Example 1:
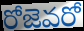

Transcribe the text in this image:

రోజెవరో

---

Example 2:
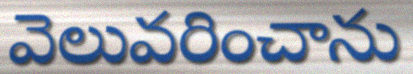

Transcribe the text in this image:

వెలువరించాను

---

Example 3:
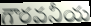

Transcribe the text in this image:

గౌరవనీయ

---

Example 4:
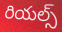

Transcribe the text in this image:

రియల్స్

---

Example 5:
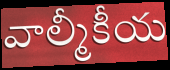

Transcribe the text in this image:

వాల్మీకీయ